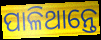
ପାଳିଥାନ୍ତେ